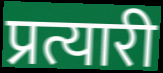
प्रत्यारी